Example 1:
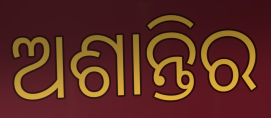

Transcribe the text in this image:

ଅଶାନ୍ତିର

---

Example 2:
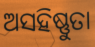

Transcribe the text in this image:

ଅସହିଷ୍ଣୁତା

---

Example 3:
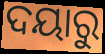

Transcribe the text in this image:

ଦୟାରୁ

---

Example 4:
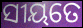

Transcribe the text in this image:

ସୀୟତେ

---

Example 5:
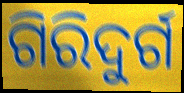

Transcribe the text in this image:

ଗିରିଦୁର୍ଗ